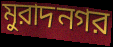
মুরাদনগর